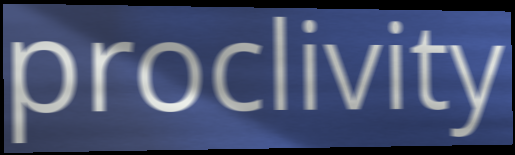
proclivity